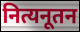
नित्यनूतन